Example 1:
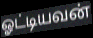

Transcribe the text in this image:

ஓட்டியவன்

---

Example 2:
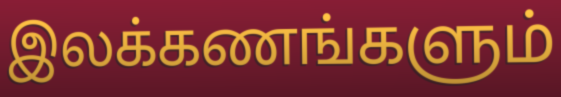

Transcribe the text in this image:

இலக்கணங்களும்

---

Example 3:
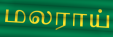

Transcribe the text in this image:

மலராய்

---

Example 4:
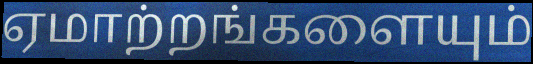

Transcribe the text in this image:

ஏமாற்றங்களையும்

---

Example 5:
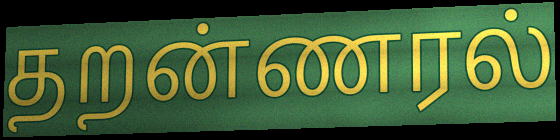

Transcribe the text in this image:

தறன்ணரல்